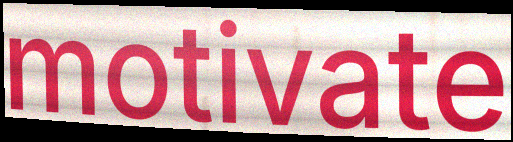
motivate